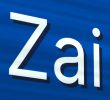
Zai